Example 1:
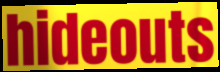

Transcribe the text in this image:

hideouts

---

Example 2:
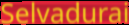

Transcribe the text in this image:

Selvadurai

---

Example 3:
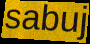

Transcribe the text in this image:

sabuj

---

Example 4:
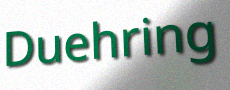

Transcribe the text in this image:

Duehring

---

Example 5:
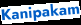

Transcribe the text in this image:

Kanipakam